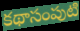
కథాసంపుటి